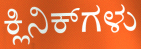
ಕ್ಲಿನಿಕ್‌ಗಳು